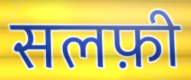
सलफ़ी